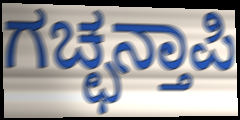
ಗಚ್ಛನ್ತಾಪಿ